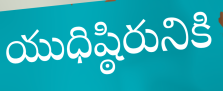
యుధిష్ఠిరునికి